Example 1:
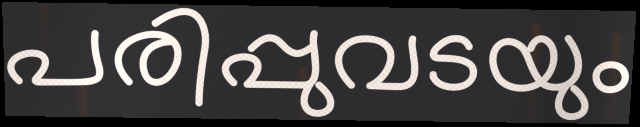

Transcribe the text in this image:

പരിപ്പുവടയും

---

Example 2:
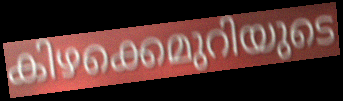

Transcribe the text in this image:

കിഴക്കെമുറിയുടെ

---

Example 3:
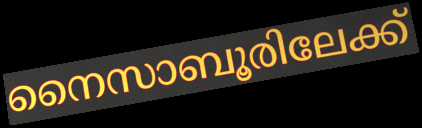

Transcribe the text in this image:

നൈസാബൂരിലേക്ക്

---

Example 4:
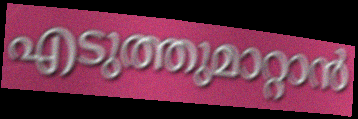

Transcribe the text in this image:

എടുത്തുമാറ്റാൻ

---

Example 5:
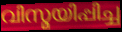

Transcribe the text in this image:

വിസ്മയിപ്പിച്ച